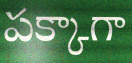
పక్కాగా